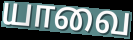
யாவை